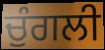
ਚੁੰਗਲੀ